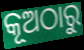
କୂଅଠାରୁ